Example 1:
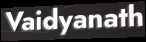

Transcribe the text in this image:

Vaidyanath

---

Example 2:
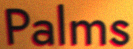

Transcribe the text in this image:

Palms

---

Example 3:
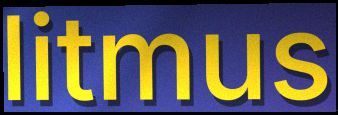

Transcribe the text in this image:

litmus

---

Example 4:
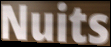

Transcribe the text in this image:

Nuits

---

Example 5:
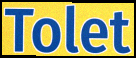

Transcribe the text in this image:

Tolet